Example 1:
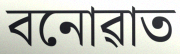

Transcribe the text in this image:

বনোৱাত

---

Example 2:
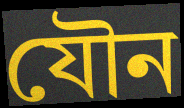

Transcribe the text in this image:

যৌন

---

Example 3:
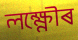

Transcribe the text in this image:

লক্ষ্ণৌৰ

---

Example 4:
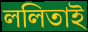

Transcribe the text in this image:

ললিতাই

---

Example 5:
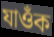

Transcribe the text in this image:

যাওঁক